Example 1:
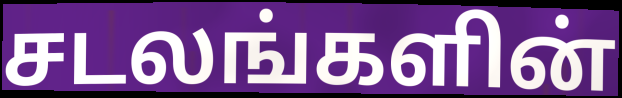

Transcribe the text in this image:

சடலங்களின்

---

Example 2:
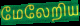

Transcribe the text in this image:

மேலேறிய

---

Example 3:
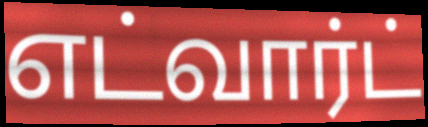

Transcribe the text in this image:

எட்வார்ட்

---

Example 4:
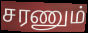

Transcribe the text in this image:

சரணும்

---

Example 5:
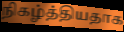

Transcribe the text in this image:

நிகழ்த்தியதாக